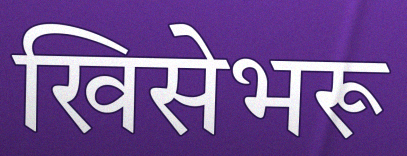
खिसेभरू